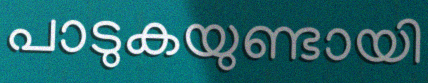
പാടുകയുണ്ടായി